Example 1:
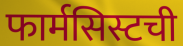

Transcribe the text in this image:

फार्मसिस्टची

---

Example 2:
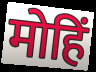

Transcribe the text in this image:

मोहिं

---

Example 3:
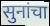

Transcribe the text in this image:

सुनांचा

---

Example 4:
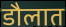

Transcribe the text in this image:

डौलात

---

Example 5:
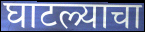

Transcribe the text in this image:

घाटल्याचा